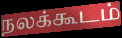
நலக்கூடம்